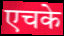
एचके